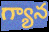
గ్యాన